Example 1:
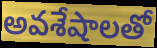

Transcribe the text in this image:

అవశేషాలతో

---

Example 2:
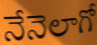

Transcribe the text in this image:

నేనెలాగో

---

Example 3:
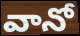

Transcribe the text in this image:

వానో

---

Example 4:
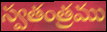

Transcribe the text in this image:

స్వతంత్రము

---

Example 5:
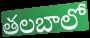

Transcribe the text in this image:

తలబాలో